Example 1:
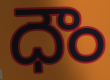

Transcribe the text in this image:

ధౌం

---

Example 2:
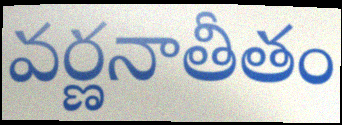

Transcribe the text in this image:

వర్ణనాతీతం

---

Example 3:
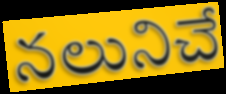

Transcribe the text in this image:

నలునిచే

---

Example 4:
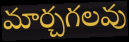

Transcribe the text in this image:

మార్చగలవు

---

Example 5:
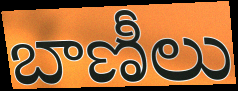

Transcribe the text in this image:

బాణీలు